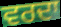
ਵਰਦਾ